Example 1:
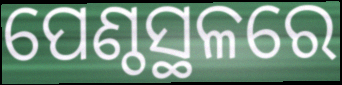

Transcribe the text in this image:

ପେଣ୍ଠସ୍ଥଳରେ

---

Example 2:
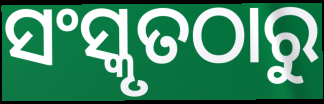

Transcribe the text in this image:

ସଂସ୍କୃତଠାରୁ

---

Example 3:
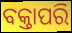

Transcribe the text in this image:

ବକ୍ତାପରି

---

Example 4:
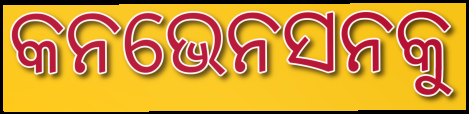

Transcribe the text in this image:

କନଭେନସନକୁ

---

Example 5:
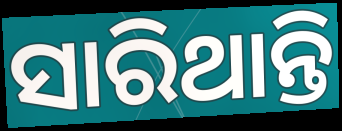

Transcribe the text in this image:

ସାରିଥାନ୍ତି